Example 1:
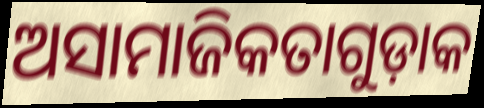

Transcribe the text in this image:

ଅସାମାଜିକତାଗୁଡ଼ାକ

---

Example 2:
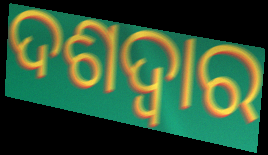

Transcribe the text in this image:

ଦଶଦ୍ୱାର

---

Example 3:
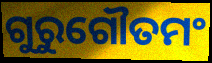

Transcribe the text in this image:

ଗୁରୁଗୌତମଂ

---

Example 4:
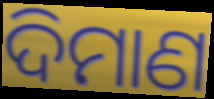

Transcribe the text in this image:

ଦିମାଣ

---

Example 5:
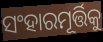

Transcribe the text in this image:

ସଂହାରମୂର୍ତ୍ତିକୁ